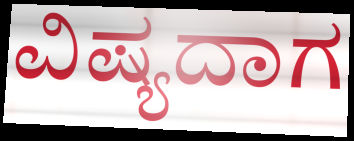
ವಿಷ್ಯದಾಗ